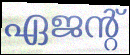
ഏജന്റ്